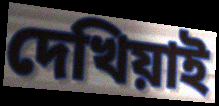
দেখিয়াই